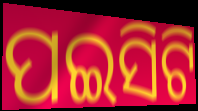
ପଇସିଟି